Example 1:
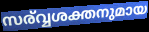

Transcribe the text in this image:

സര്വ്വശക്തനുമായ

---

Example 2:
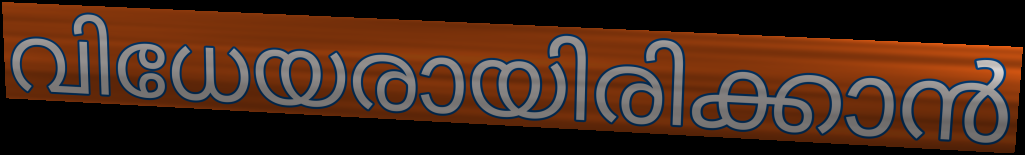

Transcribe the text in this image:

വിധേയരായിരിക്കാൻ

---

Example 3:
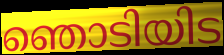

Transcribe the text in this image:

ഞൊടിയിട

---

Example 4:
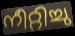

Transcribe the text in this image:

നീറ്റിച്ചു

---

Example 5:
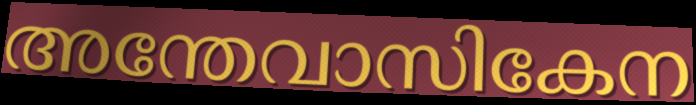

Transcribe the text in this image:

അന്തേവാസികേന